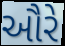
ઔરે